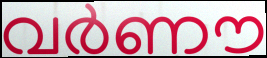
വർണൗ